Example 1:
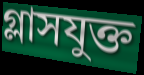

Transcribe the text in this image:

গ্লাসযুক্ত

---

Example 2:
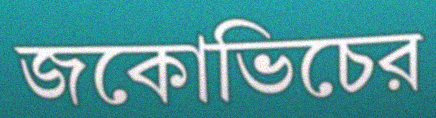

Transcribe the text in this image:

জকোভিচের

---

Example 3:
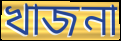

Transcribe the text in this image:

খাজনা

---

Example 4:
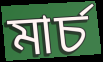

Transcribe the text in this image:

মার্চ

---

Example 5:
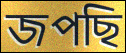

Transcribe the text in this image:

জপছি